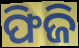
ଫିଜି